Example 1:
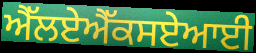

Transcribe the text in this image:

ਐੱਲਏਐੱਕਸਏਆਈ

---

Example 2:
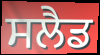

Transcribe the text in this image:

ਸਲੈਡ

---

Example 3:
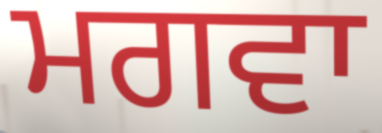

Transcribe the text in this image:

ਮਗਵਾ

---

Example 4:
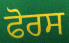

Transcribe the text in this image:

ਫੋਰਸ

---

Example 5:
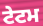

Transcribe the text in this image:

ਟੇਟਮ